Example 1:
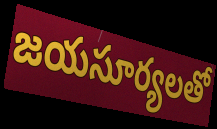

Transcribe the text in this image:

జయసూర్యలతో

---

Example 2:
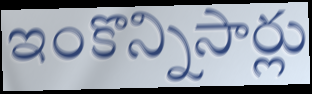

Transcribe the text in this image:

ఇంకొన్నిసార్లు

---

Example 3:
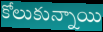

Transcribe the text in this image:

కోలుకున్నాయి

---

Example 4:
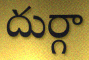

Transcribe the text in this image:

దుర్గా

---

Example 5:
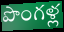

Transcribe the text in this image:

పొంగళ్ల